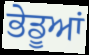
ਭੇਡੂਆਂ